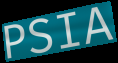
PSIA